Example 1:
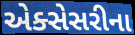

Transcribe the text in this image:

એક્સેસરીના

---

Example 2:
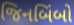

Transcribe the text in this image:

જિનબિંબો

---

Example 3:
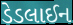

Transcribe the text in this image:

ડેડલાઈન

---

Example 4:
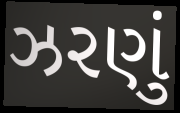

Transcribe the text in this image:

ઝરણું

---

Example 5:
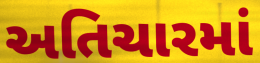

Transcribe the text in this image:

અતિચારમાં